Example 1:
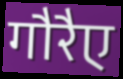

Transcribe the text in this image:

गौरैए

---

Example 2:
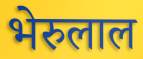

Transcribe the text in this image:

भेरुलाल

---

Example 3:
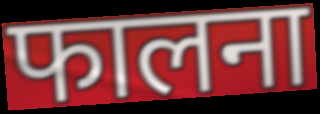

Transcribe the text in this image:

फालना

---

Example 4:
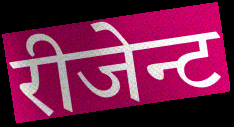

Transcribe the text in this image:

रीजेन्ट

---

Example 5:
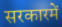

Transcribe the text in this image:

सरकारमें